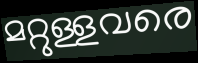
മറ്റുള്ളവരെ